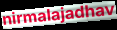
nirmalajadhav